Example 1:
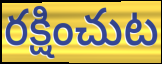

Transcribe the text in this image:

రక్షించుట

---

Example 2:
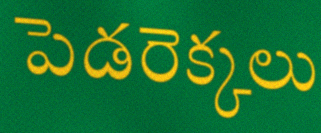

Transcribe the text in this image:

పెడరెక్కలు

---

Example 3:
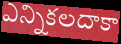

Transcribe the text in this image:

ఎన్నికలదాకా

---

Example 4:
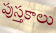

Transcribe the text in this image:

పుస్తకాలు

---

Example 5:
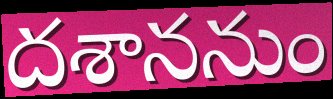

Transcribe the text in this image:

దశాననుం